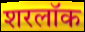
शरलॉक